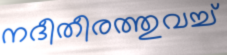
നദീതീരത്തുവച്ച്